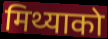
मिथ्याको